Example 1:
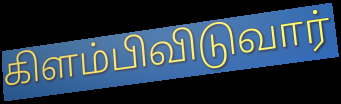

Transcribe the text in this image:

கிளம்பிவிடுவார்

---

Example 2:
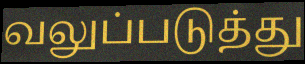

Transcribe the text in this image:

வலுப்படுத்து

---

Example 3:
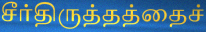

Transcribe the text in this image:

சீர்திருத்தத்தைச்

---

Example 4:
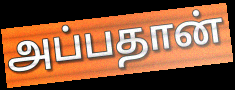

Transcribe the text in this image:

அப்பதான்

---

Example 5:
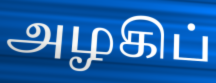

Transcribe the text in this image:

அழகிப்